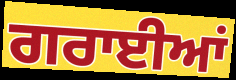
ਗਰਾਈਆਂ